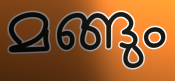
മങ്ങും